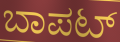
ಬಾಪಟ್